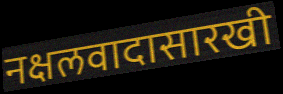
नक्षलवादासारखी